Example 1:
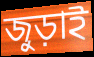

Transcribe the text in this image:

জুড়াই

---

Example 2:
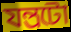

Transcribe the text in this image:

যন্ত্ৰটো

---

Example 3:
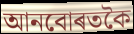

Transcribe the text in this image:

আনবোৰতকৈ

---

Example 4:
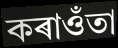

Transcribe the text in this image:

কৰাওঁতা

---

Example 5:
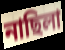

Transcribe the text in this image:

নাছিলা